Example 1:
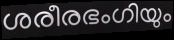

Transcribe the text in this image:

ശരീരഭംഗിയും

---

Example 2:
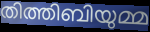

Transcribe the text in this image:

തിത്തിബിയുമ്മ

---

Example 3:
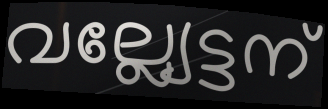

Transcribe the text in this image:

വല്ല്യേട്ടന്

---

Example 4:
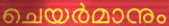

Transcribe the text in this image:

ചെയർമാനും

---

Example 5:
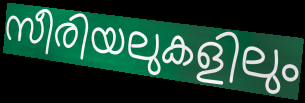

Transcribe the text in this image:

സീരിയലുകളിലും